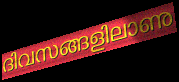
ദിവസങ്ങളിലാണു